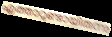
എത്താറുണ്ടായിരുന്നു